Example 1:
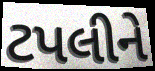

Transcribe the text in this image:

ટપલીને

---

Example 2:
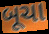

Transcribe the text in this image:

બૂચા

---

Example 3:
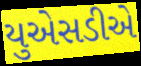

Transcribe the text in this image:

યુએસડીએ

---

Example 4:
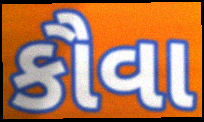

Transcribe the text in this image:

કૌવા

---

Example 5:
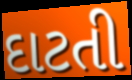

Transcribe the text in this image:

દાટતી